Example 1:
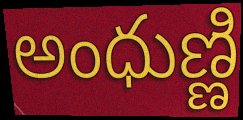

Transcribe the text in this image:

అంధుణ్ణి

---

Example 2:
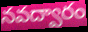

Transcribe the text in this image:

నవద్వారం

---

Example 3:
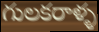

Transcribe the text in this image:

గులకరాళ్ళ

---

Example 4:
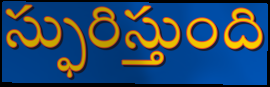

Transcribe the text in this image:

స్ఫురిస్తుంది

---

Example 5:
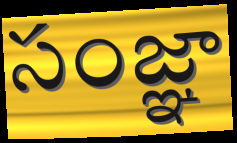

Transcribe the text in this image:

సంజ్ఞా